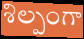
శిల్పంగా